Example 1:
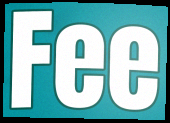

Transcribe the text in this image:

Fee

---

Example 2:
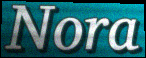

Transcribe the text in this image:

Nora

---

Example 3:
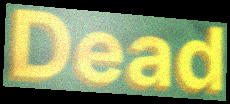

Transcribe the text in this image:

Dead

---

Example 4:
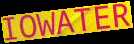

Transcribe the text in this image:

IOWATER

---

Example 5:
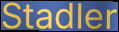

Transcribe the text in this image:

Stadler